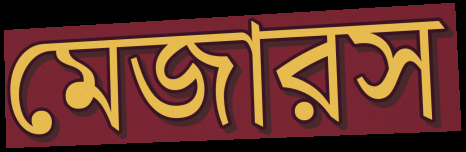
মেজারস